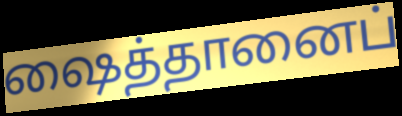
ஷைத்தானைப்